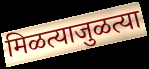
मिळत्याजुळत्या